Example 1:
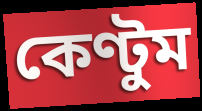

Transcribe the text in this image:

কেণ্টুম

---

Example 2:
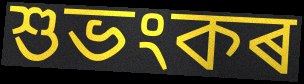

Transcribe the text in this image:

শুভংকৰ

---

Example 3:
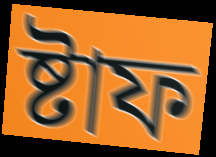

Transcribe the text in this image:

ষ্টাফ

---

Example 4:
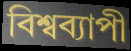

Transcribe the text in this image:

বিশ্বব্যাপী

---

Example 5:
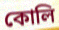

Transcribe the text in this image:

কোলি